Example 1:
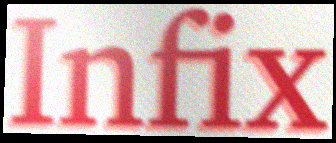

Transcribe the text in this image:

Infix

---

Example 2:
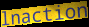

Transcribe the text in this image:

lnaction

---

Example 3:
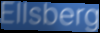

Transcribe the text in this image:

Ellsberg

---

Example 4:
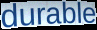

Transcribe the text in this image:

durable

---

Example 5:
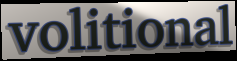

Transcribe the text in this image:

volitional